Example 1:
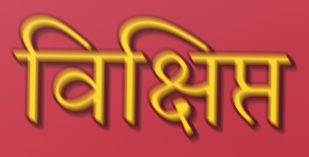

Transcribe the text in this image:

विक्षिप्त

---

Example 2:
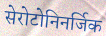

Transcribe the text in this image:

सेरोटोनिनर्जिक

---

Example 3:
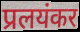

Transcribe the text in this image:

प्रलयंकर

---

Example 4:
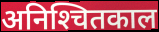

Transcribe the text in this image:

अनिश्‍चितकाल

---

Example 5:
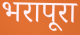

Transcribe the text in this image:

भरापूरा